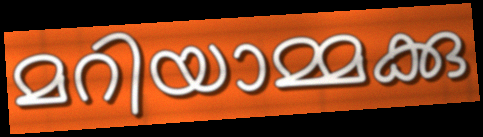
മറിയാമ്മക്കു